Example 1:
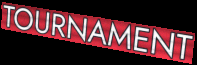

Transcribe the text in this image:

TOURNAMENT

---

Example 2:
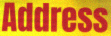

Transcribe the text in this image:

Address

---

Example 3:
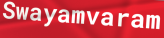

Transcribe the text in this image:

Swayamvaram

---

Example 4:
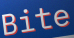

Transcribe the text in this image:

Bite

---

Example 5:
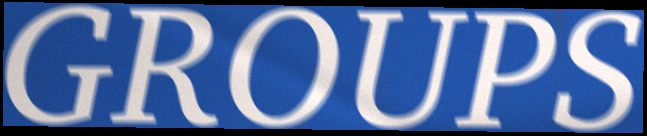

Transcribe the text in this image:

GROUPS